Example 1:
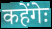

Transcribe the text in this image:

कहेंगेः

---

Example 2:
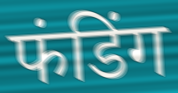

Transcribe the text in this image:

फंडिंग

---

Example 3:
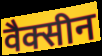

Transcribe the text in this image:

वैक्सीन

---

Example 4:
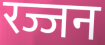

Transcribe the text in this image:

रज्जन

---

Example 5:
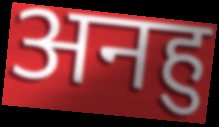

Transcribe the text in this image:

अनहु